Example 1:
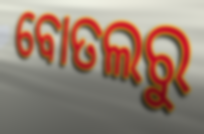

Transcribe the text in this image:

ବୋତଲରୁ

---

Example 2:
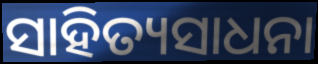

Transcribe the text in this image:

ସାହିତ୍ୟସାଧନା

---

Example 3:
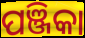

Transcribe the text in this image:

ପଞ୍ଜିକା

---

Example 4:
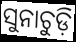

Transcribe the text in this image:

ସୁନାଚୁଡ଼ି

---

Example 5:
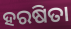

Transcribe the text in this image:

ହରଷିତା